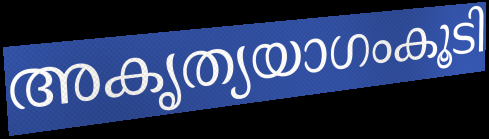
അകൃത്യയാഗംകൂടി